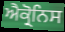
ਐਕ੍ਰੋਨਿਸ